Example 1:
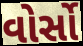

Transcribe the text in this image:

વોર્સો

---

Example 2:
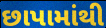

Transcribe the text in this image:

છાપામાંથી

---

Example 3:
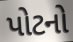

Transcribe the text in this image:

પોટનો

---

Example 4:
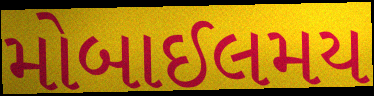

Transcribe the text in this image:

મોબાઈલમય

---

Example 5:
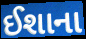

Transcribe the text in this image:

ઈશાના